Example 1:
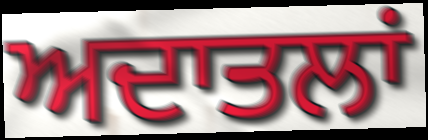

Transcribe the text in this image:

ਅਦਾਤਲਾਂ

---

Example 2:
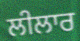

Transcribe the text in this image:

ਲੀਲਾਰ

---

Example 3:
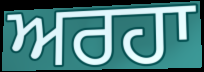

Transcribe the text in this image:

ਅਰਹਾ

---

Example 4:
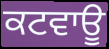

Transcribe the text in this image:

ਕਟਵਾਊ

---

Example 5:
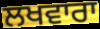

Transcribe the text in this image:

ਲਖਵਾਰਾ